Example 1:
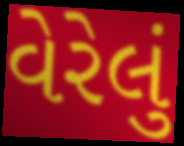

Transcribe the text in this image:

વેરેલું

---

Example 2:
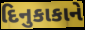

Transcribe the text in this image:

દિનુકાકાને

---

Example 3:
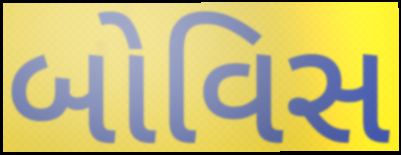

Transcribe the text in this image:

બોવિસ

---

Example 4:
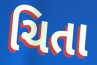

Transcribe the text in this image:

ચિતા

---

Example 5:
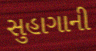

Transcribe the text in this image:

સુહાગાની